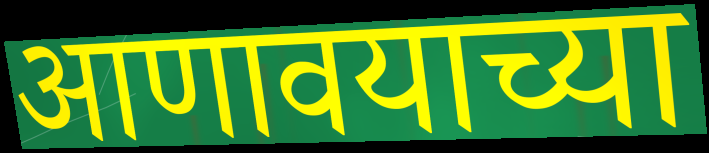
आणावयाच्या